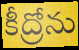
కీద్రోను